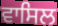
ਵਾਸਿਲ